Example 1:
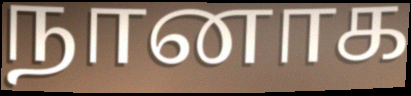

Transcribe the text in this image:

நானாக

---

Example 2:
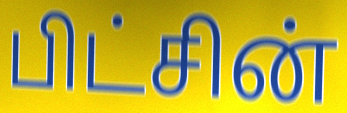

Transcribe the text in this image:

பிட்சின்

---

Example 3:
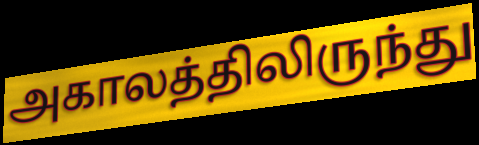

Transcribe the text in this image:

அகாலத்திலிருந்து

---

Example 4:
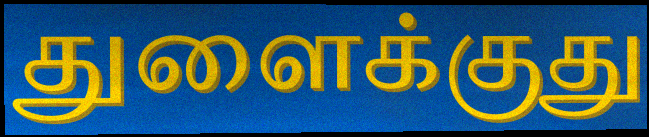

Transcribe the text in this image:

துளைக்குது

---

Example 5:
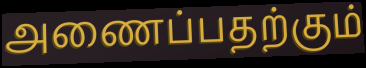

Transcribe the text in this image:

அணைப்பதற்கும்